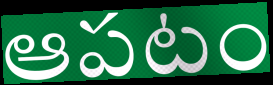
ఆపటం